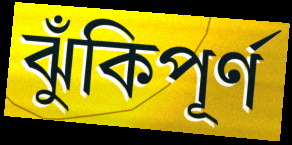
ঝুঁকিপূর্ণ